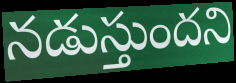
నడుస్తుందని